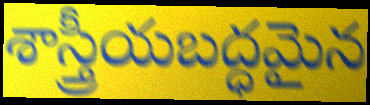
శాస్త్రీయబద్ధమైన